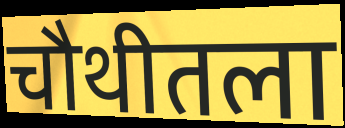
चौथीतला